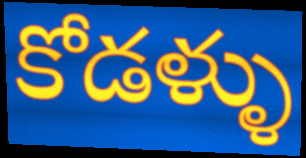
కోడళ్ళు